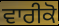
ਵਾਰੀਕੋ